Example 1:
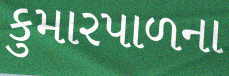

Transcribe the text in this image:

કુમારપાળના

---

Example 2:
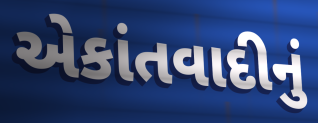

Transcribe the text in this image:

એકાંતવાદીનું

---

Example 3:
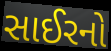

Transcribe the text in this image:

સાઈરનો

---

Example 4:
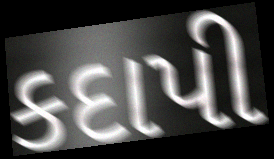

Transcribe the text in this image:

કદાપી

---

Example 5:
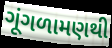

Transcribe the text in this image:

ગૂંગળામણથી